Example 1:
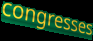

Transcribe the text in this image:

congresses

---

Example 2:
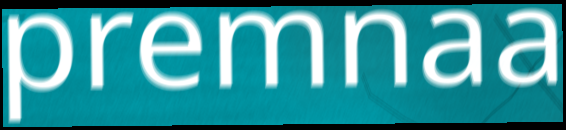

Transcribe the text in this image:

premnaa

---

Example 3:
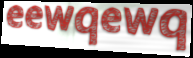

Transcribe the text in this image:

eewqewq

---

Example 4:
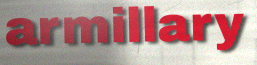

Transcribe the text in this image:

armillary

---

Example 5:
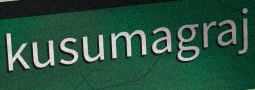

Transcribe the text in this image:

kusumagraj